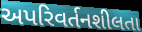
અપરિવર્તનશીલતા